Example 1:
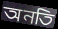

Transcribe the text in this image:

অনতি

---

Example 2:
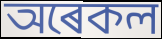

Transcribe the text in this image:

অৰেকল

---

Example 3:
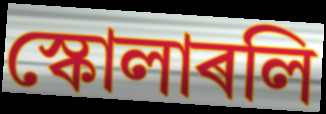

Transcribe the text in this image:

স্কোলাৰলি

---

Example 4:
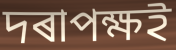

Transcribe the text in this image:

দৰাপক্ষই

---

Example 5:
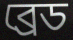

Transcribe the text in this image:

ব্ৰেড